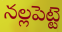
నల్లపెట్టె